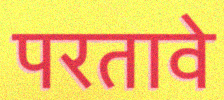
परतावे